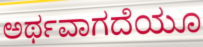
ಅರ್ಥವಾಗದೆಯೂ